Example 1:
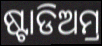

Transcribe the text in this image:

ଷ୍ଟାଡିଅମ୍ର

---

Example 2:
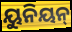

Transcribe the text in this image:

ୟୁନିୟନ୍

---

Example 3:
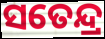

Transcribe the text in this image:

ସତେନ୍ଦ୍ର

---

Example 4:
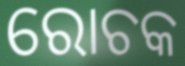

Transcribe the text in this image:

ରୋଚକ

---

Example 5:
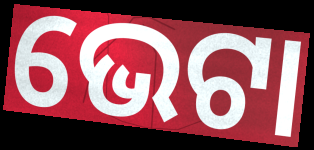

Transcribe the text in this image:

ଭେଟା